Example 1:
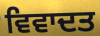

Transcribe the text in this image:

ਵਿਵਾਦਤ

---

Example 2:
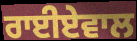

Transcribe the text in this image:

ਰਾਈਏਵਾਲ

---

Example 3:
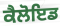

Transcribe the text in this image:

ਕੈਲੋਇਡ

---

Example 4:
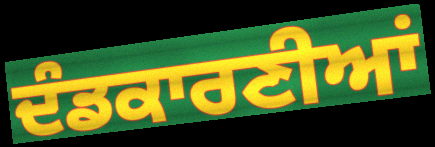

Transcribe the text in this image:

ਦੰਡਕਾਰਣੀਆਂ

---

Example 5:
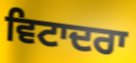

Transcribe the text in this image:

ਵਿਟਾਦਰਾ